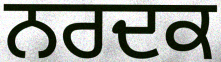
ਨਰਦਕ